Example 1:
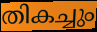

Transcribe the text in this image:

തികച്ചും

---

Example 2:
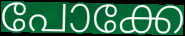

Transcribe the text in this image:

പോക്കേ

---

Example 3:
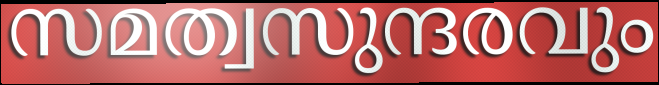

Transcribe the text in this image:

സമത്വസുന്ദരവും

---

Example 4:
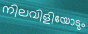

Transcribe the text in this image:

നിലവിളിയോടും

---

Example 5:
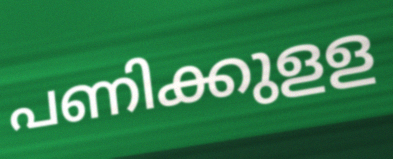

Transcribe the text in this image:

പണിക്കുളള